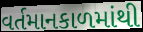
વર્તમાનકાળમાંથી